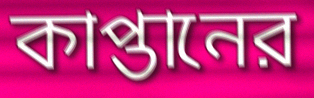
কাপ্তানের